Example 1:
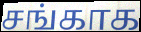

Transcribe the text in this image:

சங்காக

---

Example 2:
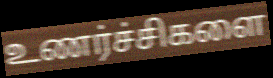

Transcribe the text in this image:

உணர்ச்சிகளை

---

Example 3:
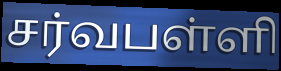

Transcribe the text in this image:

சர்வபள்ளி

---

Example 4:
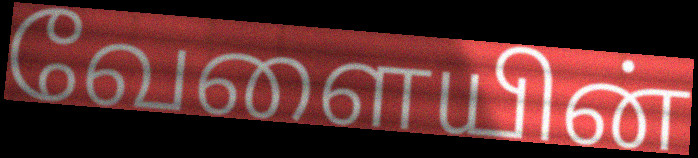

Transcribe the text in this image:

வேளையின்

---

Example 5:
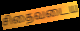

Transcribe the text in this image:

சிதைவடைய